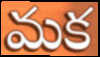
మక